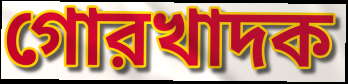
গোরখাদক